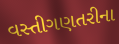
વસ્તીગણતરીના